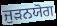
ਜੁੜਨਯੋਗ